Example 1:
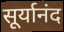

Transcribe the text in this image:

सूर्यानंद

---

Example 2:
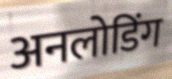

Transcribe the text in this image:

अनलोडिंग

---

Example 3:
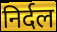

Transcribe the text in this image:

निर्दल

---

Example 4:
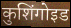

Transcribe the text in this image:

कुशिंगोइड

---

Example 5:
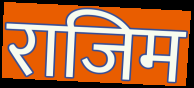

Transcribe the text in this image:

राजिम